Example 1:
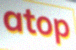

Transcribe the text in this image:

atop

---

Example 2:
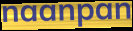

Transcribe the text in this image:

naanpan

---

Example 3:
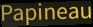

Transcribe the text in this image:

Papineau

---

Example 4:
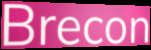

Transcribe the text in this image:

Brecon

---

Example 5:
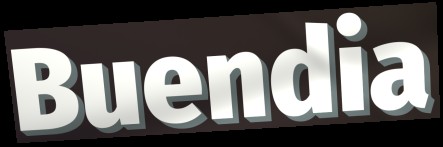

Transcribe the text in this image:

Buendia